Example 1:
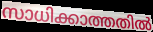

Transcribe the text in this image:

സാധിക്കാത്തതിൽ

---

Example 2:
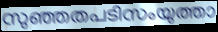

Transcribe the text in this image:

സുഞ്ഞതപടിസംയുത്താ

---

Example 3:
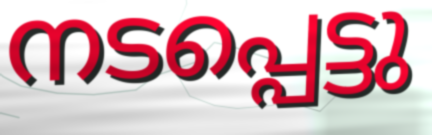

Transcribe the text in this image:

നടപ്പെട്ടു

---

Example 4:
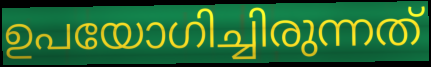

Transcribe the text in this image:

ഉപയോഗിച്ചിരുന്നത്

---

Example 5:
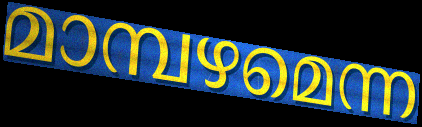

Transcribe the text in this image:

മാമ്പഴമെന്ന